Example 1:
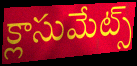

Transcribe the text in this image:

క్లాసుమేట్స్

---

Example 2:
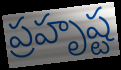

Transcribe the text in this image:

ప్రహృష్ట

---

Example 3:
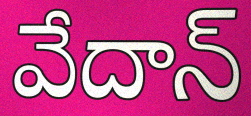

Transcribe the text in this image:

వేదాన్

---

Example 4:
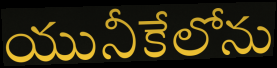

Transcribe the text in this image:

యునీకేలోను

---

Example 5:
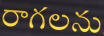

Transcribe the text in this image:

రాగలను